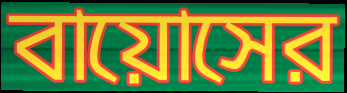
বায়োসের